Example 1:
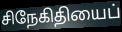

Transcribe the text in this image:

சிநேகிதியைப்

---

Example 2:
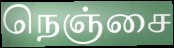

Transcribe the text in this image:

நெஞ்சை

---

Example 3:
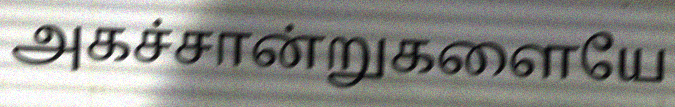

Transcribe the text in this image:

அகச்சான்றுகளையே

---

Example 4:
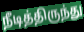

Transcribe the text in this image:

நீடித்திருந்து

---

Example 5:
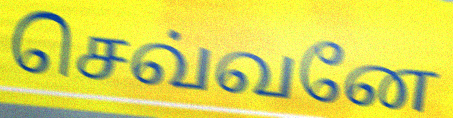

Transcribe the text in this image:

செவ்வனே